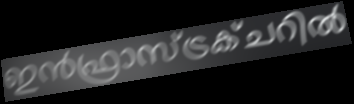
ഇൻഫ്രാസ്ട്രക്ചറിൽ